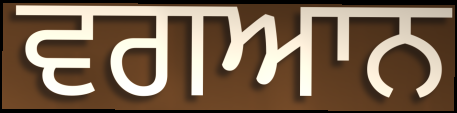
ਵਗਆਨ